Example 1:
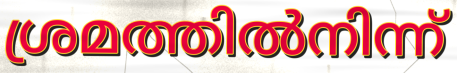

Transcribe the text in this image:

ശ്രമത്തിൽനിന്ന്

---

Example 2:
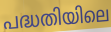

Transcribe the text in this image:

പദ്ധതിയിലെ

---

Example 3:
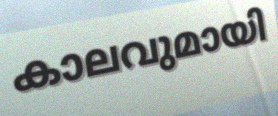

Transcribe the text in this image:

കാലവുമായി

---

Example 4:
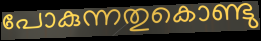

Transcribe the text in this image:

പോകുന്നതുകൊണ്ടു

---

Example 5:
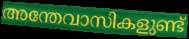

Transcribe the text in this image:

അന്തേവാസികളുണ്ട്